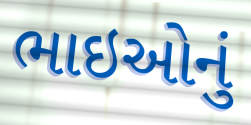
ભાઇઓનું